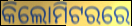
କିଲୋମିଟରରେ